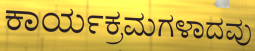
ಕಾರ್ಯಕ್ರಮಗಳಾದವು